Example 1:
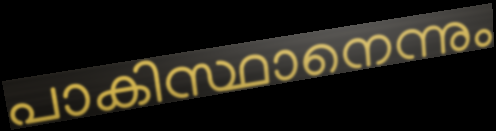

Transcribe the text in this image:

പാകിസ്ഥാനെന്നും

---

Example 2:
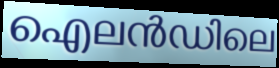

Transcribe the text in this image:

ഐലൻഡിലെ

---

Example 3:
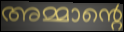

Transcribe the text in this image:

അമ്മാന്റെ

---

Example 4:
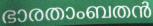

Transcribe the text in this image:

ഭാരതാംബതൻ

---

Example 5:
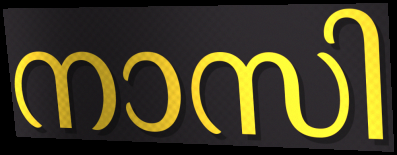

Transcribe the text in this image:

നാസി